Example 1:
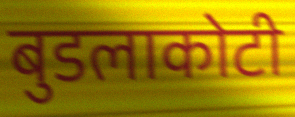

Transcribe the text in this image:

बुडलाकोटी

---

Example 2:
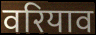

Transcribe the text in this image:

वरियाव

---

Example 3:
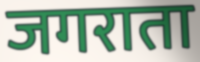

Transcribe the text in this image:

जगराता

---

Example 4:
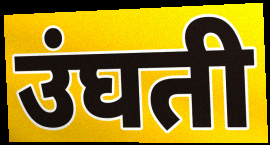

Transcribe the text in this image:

उंघती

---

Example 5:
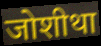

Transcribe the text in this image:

जोशीथा